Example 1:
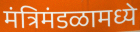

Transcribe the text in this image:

मंत्रिमंडळामध्ये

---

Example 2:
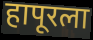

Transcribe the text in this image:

हापूरला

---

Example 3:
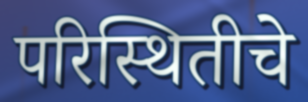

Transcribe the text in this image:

परिस्थितीचे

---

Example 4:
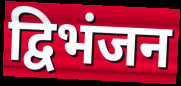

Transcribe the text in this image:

द्विभंजन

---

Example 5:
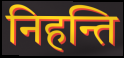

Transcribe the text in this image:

निहन्ति